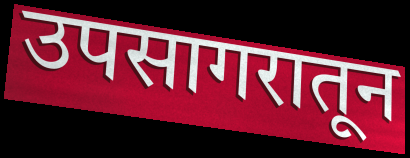
उपसागरातून